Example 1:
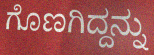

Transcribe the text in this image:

ಗೊಣಗಿದ್ದನ್ನು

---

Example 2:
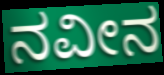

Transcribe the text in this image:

ನವೀನ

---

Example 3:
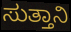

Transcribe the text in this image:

ಸುತ್ತಾನಿ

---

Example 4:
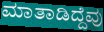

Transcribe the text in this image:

ಮಾತಾಡಿದ್ದೆವು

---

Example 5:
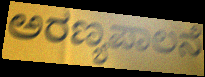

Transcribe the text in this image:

ಅರಣ್ಯಪಾಲನೆ